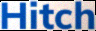
Hitch